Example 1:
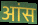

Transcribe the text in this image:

आंस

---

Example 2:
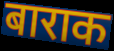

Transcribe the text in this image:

बाराक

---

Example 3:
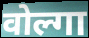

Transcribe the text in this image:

वोल्गा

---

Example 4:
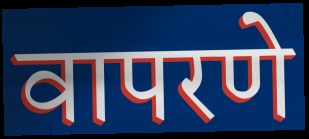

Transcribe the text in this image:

वापरणे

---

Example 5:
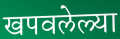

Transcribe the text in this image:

खपवलेल्या